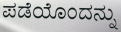
ಪಡೆಯೊಂದನ್ನು